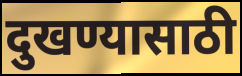
दुखण्यासाठी